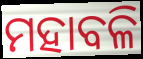
ମହାବଳି